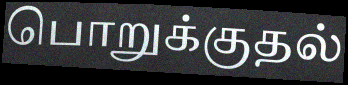
பொறுக்குதல்